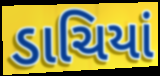
ડાચિયાં